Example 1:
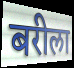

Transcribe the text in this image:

बरीला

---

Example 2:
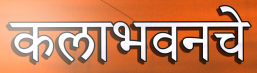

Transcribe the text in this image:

कलाभवनचे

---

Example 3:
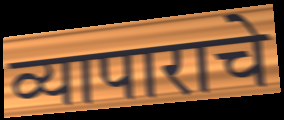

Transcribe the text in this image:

व्यापाराचे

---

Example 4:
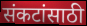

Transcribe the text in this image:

संकटांसाठी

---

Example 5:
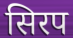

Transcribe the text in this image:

सिरप